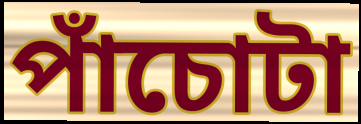
পাঁচোটা